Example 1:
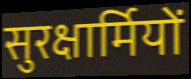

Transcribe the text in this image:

सुरक्षार्मियों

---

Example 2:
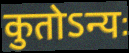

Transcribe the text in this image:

कुतोऽन्यः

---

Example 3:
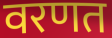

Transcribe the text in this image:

वरणत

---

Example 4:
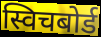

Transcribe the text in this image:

स्विचबोर्ड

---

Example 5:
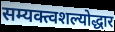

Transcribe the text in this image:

सम्यक्त्वशल्योद्धार